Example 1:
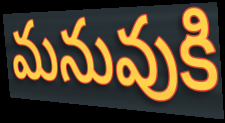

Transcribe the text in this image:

మనువుకి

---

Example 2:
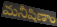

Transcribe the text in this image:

మనీషిణాం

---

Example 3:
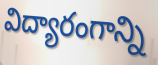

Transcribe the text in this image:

విద్యారంగాన్ని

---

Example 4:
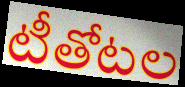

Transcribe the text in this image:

టీతోటల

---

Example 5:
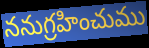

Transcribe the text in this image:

ననుగ్రహించుము